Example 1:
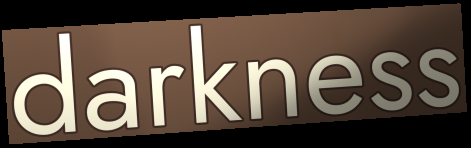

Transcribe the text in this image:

darkness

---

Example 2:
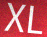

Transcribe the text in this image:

XL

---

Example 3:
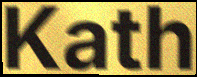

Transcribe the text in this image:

Kath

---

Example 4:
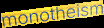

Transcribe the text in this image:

monotheism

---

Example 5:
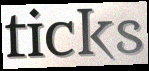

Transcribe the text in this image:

ticks